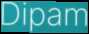
Dipam